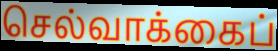
செல்வாக்கைப்